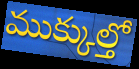
ముక్కుల్తో